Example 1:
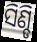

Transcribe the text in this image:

ସିଣ୍ଡି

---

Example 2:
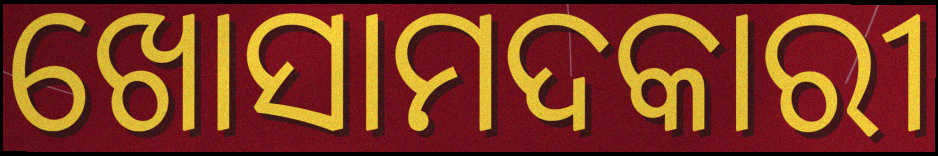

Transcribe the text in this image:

ଖୋସାମଦକାରୀ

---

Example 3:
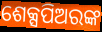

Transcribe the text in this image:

ଶେକ୍ସପିଅରଙ୍କ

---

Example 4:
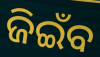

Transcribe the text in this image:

ଜିଇଁବ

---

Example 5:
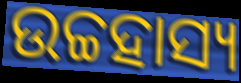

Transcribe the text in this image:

ଉଚ୍ଚହାସ୍ୟ